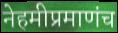
नेहमीप्रमाणंच